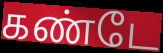
கண்டே